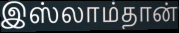
இஸ்லாம்தான்